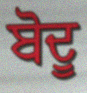
ਬੋਦੂ